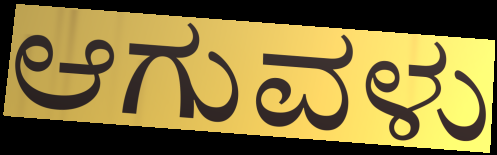
ಆಗುವಳು